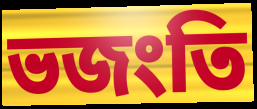
ভজংতি